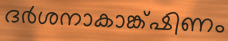
ദർശനാകാങ്ക്ഷിണം